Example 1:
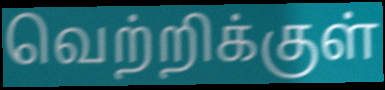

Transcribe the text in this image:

வெற்றிக்குள்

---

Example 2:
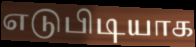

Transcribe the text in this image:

எடுபிடியாக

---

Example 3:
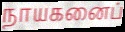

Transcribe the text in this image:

நாயகனைப்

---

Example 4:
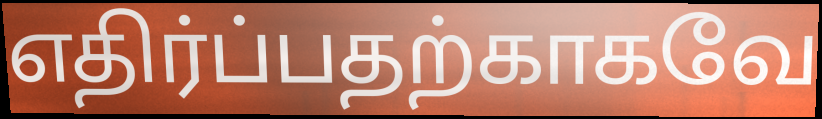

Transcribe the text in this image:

எதிர்ப்பதற்காகவே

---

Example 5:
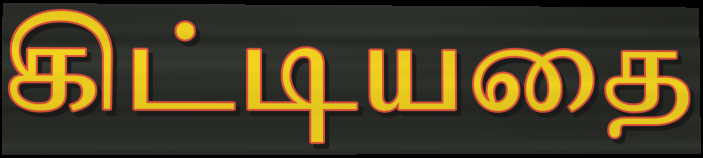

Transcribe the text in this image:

கிட்டியதை